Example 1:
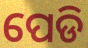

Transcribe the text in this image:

ପେଡି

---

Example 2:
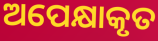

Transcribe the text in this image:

ଅପେକ୍ଷାକୃତ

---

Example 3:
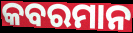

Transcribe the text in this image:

କବରମାନ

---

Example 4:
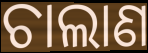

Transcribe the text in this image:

ଚାଲାଣ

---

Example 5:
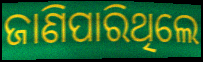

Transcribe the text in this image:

ଜାଣିପାରିଥିଲେ